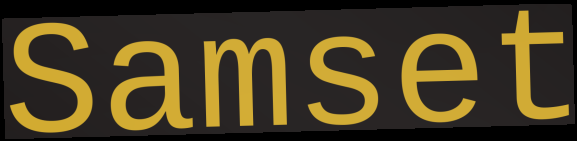
Samset